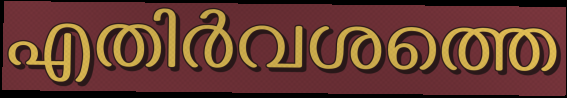
എതിർവശത്തെ